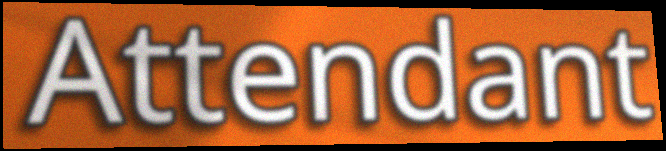
Attendant